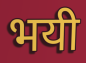
भयी